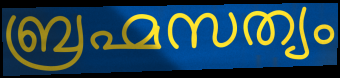
ബ്രഹ്മസത്യം